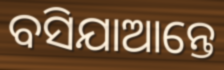
ବସିଯାଆନ୍ତେ